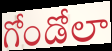
గోండోలా